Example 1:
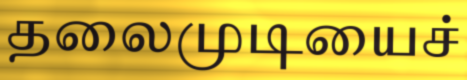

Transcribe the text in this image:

தலைமுடியைச்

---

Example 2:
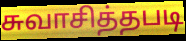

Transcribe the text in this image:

சுவாசித்தபடி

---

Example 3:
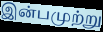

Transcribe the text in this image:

இன்பமுற்று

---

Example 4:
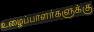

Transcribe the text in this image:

உழைப்பாளர்களுக்கு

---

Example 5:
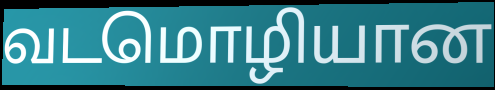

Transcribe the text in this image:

வடமொழியான